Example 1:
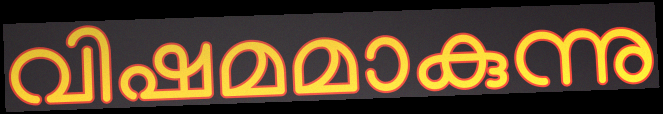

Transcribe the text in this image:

വിഷമമാകുന്നു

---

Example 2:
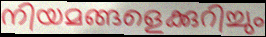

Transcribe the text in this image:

നിയമങ്ങളെക്കുറിച്ചും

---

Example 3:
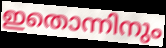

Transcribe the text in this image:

ഇതൊന്നിനും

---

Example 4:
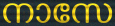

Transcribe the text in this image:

നാസേ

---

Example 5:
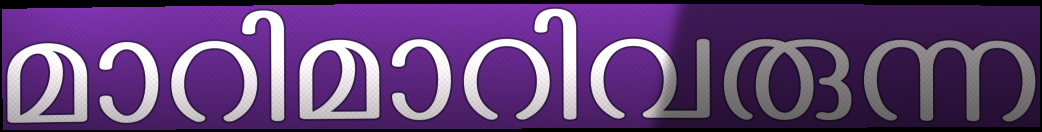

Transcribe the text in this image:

മാറിമാറിവരുന്ന